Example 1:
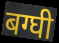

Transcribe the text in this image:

बग्घी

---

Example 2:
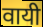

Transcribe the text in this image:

वायी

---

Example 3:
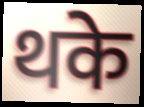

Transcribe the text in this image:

थके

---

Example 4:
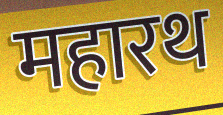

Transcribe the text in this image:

महारथ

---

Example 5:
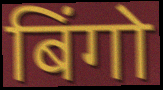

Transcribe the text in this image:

बिंगो